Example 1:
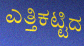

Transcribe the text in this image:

ಎತ್ತಿಕಟ್ಟಿದ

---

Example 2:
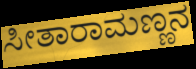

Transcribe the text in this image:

ಸೀತಾರಾಮಣ್ಣನ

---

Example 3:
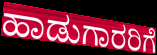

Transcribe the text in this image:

ಹಾಡುಗಾರರಿಗೆ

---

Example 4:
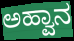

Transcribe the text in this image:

ಅಹ್ವಾನ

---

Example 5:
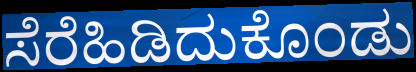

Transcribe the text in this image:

ಸೆರೆಹಿಡಿದುಕೊಂಡು